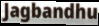
Jagbandhu